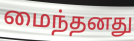
மைந்தனது